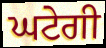
ਘਟੇਗੀ